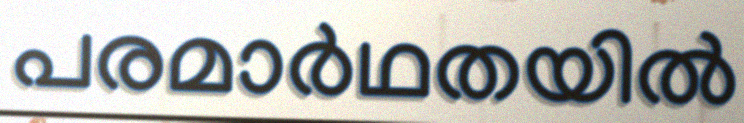
പരമാർഥതയിൽ